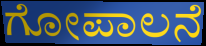
ಗೋಪಾಲನೆ